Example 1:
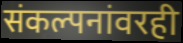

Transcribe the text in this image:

संकल्पनांवरही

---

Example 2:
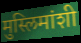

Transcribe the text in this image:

मुस्लिमांशी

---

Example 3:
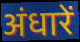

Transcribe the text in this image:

अंधारें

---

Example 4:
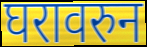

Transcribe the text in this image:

घरावरुन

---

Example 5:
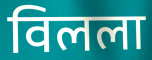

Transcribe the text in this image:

विलला